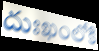
దుఃఖంలోకి